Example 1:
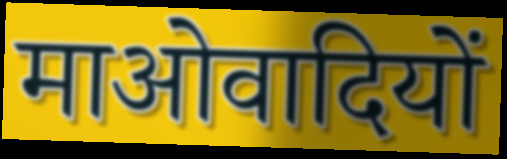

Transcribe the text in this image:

माओवादियों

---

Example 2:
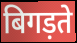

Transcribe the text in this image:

बिगड़ते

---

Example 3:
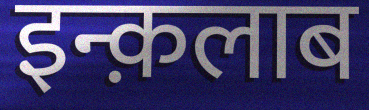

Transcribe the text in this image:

इन्क़लाब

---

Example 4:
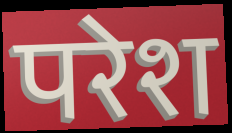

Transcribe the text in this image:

परेश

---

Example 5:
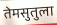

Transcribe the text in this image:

तेमसुतुला